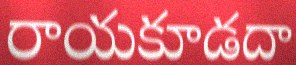
రాయకూడదా